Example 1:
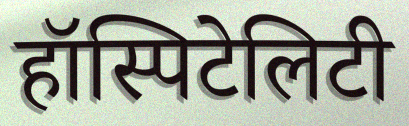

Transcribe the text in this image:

हॉस्पिटेलिटी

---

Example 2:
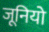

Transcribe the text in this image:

जूनियो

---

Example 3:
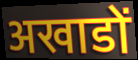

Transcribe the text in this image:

अखाडों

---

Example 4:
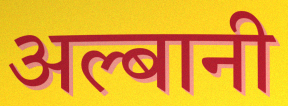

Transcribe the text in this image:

अल्बानी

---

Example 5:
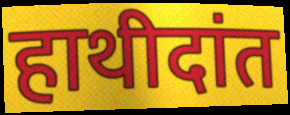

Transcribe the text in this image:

हाथीदांत